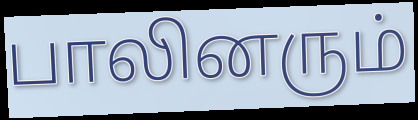
பாலினரும்